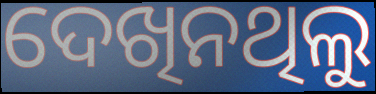
ଦେଖିନଥିଲୁ